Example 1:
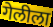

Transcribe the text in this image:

गेलीला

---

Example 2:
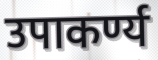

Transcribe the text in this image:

उपाकर्ण्य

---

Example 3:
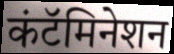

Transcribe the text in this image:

कंटॅमिनेशन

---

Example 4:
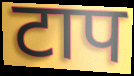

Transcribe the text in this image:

टाप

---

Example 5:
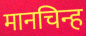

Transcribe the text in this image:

मानचिन्ह